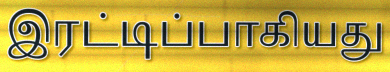
இரட்டிப்பாகியது